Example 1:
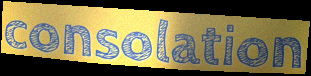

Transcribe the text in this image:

consolation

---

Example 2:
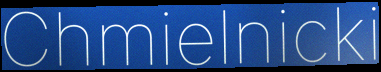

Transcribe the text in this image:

Chmielnicki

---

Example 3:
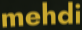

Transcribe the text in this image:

mehdi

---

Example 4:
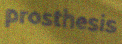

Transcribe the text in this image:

prosthesis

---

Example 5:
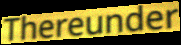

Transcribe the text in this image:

Thereunder